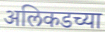
अलिकडच्या